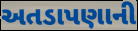
અતડાપણાની